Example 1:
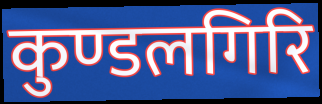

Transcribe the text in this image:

कुण्डलगिरि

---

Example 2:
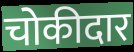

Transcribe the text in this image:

चोकीदार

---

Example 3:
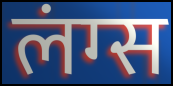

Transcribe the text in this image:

लंग्स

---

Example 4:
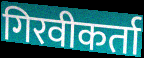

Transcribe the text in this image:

गिरवीकर्ता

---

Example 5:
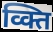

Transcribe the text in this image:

व्क्ति